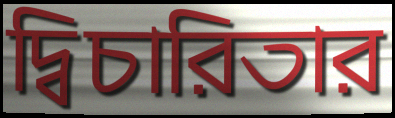
দ্বিচারিতার